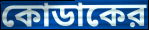
কোডাকের